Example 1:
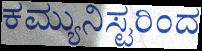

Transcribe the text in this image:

ಕಮ್ಯುನಿಸ್ಟರಿಂದ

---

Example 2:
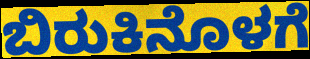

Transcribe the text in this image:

ಬಿರುಕಿನೊಳಗೆ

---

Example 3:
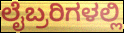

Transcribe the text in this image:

ಲೈಬ್ರರಿಗಳಲ್ಲಿ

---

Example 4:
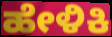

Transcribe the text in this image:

ಹೇಳಿಕಿ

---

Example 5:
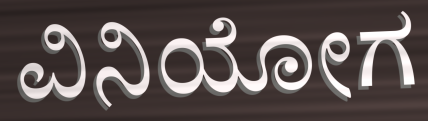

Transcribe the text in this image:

ವಿನಿಯೋಗ